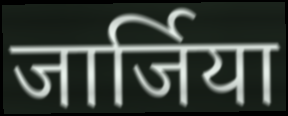
जार्जिया